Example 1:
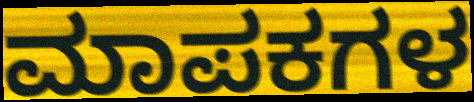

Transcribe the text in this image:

ಮಾಪಕಗಳ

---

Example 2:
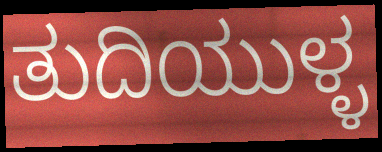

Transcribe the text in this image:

ತುದಿಯುಳ್ಳ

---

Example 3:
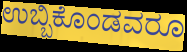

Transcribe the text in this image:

ಉಬ್ಬಿಕೊಂಡವರೂ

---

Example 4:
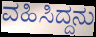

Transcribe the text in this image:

ವಹಿಸಿದ್ದನು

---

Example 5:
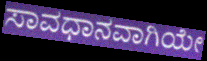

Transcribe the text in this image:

ಸಾವಧಾನವಾಗಿಯೇ